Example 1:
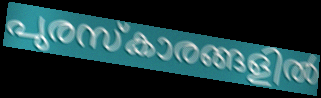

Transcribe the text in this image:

പുരസ്കാരങ്ങളിൽ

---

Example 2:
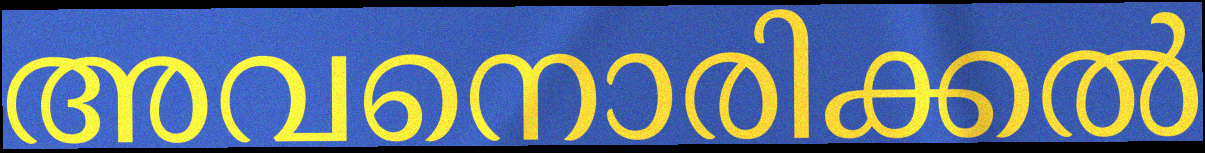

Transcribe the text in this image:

അവനൊരിക്കൽ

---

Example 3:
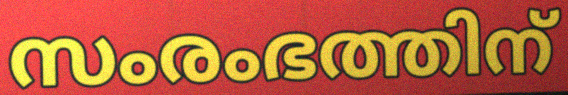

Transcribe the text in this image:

സംരംഭത്തിന്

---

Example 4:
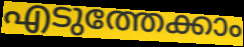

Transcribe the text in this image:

എടുത്തേക്കാം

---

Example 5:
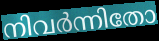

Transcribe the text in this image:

നിവർന്നിതോ